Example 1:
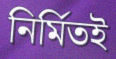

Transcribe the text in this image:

নির্মিতই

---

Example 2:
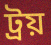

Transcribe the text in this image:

ট্রয়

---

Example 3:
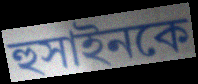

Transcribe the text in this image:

হুসাইনকে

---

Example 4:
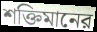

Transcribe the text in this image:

শক্তিমানের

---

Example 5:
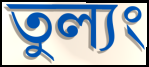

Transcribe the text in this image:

তুল্যং